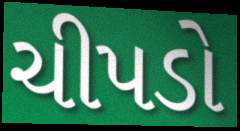
ચીપડો